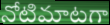
నోటిమాటగా